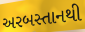
અરબસ્તાનથી